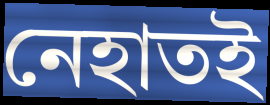
নেহাতই